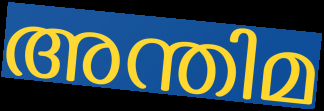
അന്തിമ